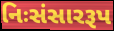
નિઃસંસારરૂપ